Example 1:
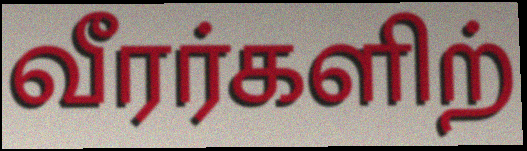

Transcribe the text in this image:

வீரர்களிற்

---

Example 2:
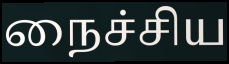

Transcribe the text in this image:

நைச்சிய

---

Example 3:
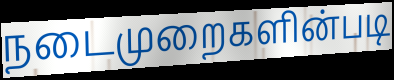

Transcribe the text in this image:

நடைமுறைகளின்படி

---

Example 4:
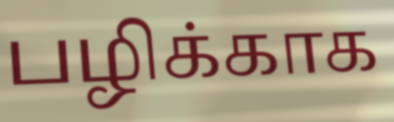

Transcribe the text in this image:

பழிக்காக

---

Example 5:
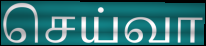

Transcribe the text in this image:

செய்வா